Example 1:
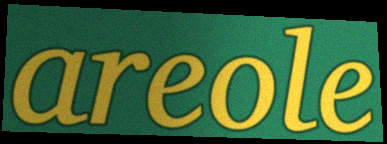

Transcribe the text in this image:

areole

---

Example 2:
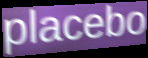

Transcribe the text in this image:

placebo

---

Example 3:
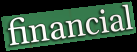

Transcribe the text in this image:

financial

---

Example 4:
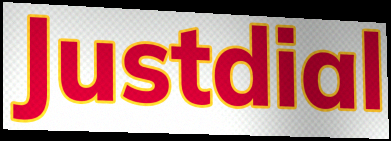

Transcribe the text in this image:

Justdial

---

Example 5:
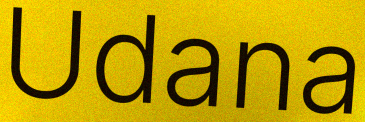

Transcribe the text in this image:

Udana